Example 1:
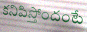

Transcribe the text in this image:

కనిపిస్తోందంటే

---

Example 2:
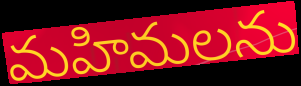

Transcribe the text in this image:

మహిమలను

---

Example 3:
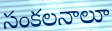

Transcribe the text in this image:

సంకలనాలూ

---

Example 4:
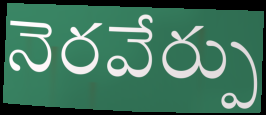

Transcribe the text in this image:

నెరవేర్పు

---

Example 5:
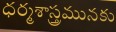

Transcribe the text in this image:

ధర్మశాస్త్రమునకు